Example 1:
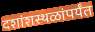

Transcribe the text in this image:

दशांशस्थळांपर्यंत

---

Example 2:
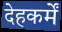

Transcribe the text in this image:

देहकर्में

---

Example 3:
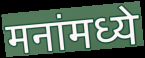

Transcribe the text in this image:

मनांमध्ये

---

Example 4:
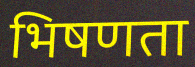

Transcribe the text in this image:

भिषणता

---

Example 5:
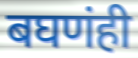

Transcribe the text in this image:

बघणंही